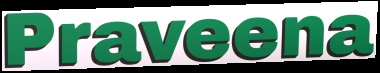
Praveena